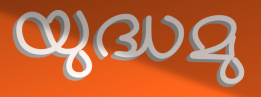
യുദ്ധമു